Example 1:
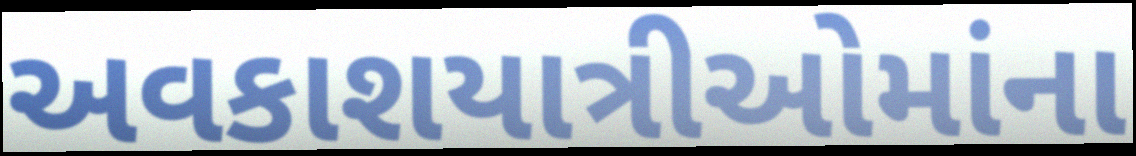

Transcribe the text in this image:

અવકાશયાત્રીઓમાંના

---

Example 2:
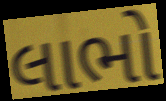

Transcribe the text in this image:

લાભો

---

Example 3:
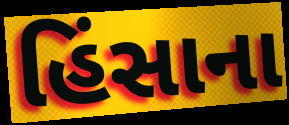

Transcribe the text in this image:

હિંસાના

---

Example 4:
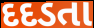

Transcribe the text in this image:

દદડતા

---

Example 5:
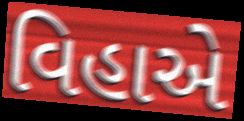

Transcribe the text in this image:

વિહાએ